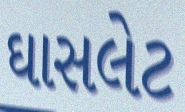
ઘાસલેટ